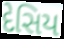
દેસિય